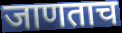
जाणताच